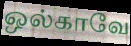
ஒல்காவே